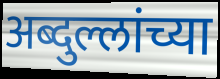
अब्दुल्लांच्या